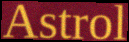
Astrol